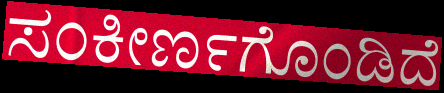
ಸಂಕೀರ್ಣಗೊಂಡಿದೆ